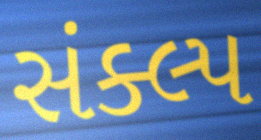
સંક્લ્પ